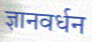
ज्ञानवर्धन